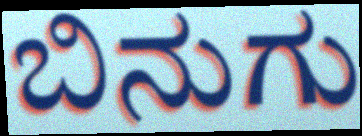
ಬಿನುಗು